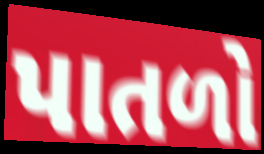
પાતળો